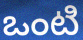
ఒంటి